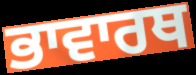
ਭਾਵਾਰਥ